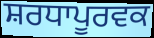
ਸ਼ਰਧਾਪੂਰਵਕ